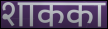
शाकका